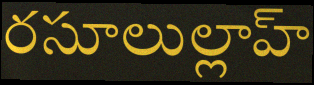
రసూలుల్లాహ్